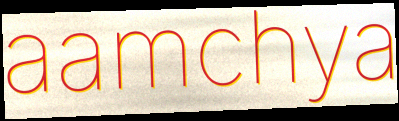
aamchya